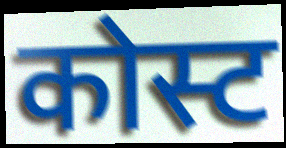
कोस्ट